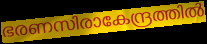
ഭരണസിരാകേന്ദ്രത്തിൽ